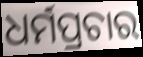
ଧର୍ମପ୍ରଚାର